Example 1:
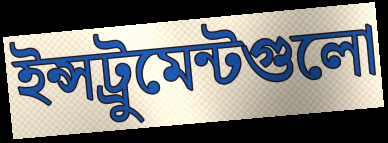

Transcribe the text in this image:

ইন্সট্রুমেন্টগুলো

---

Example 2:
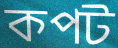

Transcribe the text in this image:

কপট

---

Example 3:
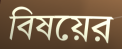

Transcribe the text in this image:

বিষয়ের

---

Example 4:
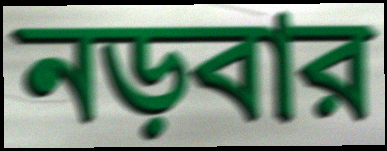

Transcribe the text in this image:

নড়বার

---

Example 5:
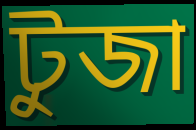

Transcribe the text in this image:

টুজা